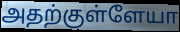
அதற்குள்ளேயா